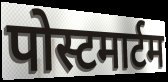
पोस्टमार्टम